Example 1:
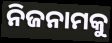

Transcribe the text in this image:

ନିଜନାମକୁ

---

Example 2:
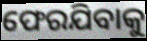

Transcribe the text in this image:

ଫେରଯିବାକୁ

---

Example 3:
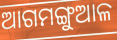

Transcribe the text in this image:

ଆଗମଙ୍ଗୁଆଳ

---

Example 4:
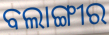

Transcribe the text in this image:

ବଲାଙ୍ଗୀର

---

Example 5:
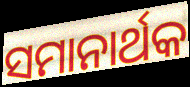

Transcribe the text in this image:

ସମାନାର୍ଥକ